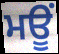
ਮਊਂ